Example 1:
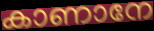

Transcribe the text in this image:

കാണാനേ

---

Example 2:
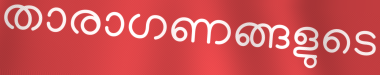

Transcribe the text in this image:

താരാഗണങ്ങളുടെ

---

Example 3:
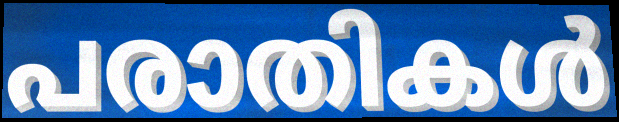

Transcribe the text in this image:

പരാതികൾ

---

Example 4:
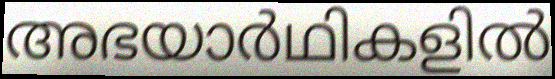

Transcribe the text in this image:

അഭയാർഥികളിൽ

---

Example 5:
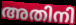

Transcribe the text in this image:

അതിനി